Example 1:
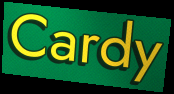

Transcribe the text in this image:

Cardy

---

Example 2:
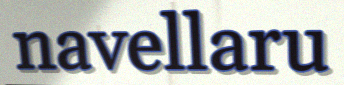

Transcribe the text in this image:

navellaru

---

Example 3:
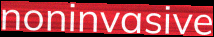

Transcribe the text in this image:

noninvasive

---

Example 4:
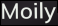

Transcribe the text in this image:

Moily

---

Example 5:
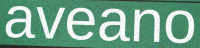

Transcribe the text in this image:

aveano